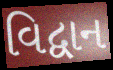
વિદ્વાન